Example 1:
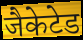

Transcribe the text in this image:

जैकेटेड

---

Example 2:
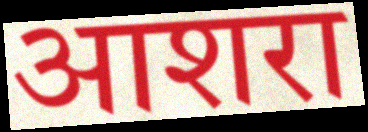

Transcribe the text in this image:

आशरा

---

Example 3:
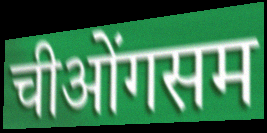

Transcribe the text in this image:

चीओंगसम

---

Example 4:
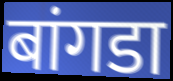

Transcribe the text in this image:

बांगडा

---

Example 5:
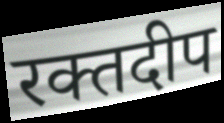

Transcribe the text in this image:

रक्तदीप